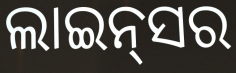
ଲାଇନ୍‌ସର